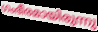
ഗംഭീരമായിരുന്നു